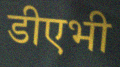
डीएभी